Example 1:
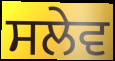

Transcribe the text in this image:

ਸਲੇਵ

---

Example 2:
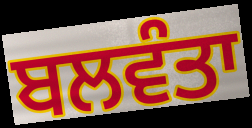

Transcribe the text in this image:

ਬਲਵੰਤਾ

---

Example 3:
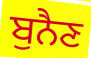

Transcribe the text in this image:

ਬੁਨੈਣ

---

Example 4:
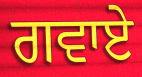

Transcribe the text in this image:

ਗਵਾਏ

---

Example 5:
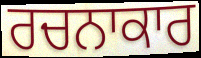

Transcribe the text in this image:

ਰਚਨਾਕਾਰ